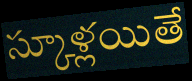
స్కూళ్లయితే